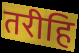
तरीहि